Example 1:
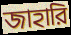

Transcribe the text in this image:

জাহারি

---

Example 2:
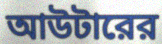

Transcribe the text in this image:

আউটারের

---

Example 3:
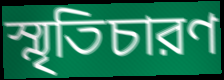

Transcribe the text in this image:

স্মৃতিচারণ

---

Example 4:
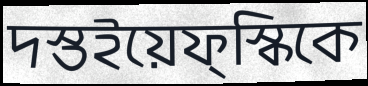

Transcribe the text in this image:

দস্তইয়েফ্স্কিকে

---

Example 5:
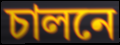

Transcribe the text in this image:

চালনে